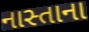
નાસ્તાના